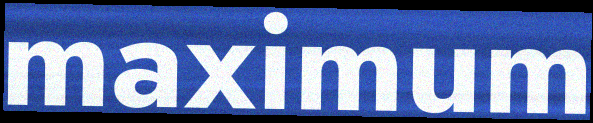
maximum